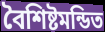
বৈশিষ্টমন্ডিত